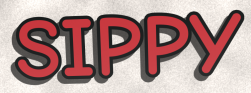
SIPPY